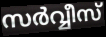
സർവ്വീസ്